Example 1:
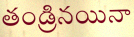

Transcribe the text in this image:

తండ్రినయినా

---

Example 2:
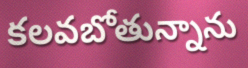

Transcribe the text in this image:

కలవబోతున్నాను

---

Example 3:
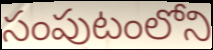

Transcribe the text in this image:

సంపుటంలోని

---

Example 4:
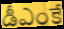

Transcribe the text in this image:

డీఎంకే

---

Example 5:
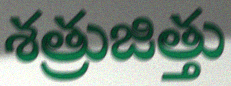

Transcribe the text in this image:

శత్రుజిత్తు